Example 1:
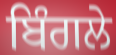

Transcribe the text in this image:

ਬਿੰਗਲੇ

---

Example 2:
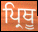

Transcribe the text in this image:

ਪ੍ਰਿਥੂ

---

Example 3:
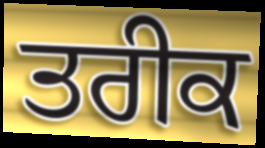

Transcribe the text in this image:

ਤਰੀਕ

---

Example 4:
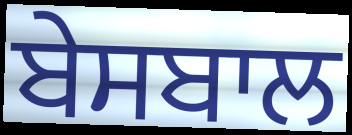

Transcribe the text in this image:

ਬੇਸਬਾਲ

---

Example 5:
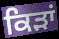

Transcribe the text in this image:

ਕਿੜਾਂ